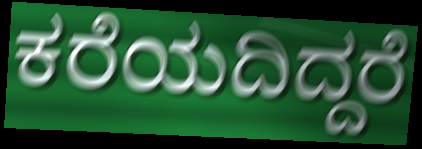
ಕರೆಯದಿದ್ದರೆ